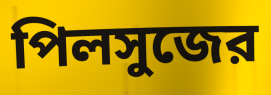
পিলসুজের